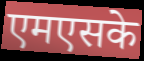
एमएसके